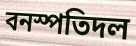
বনস্পতিদল